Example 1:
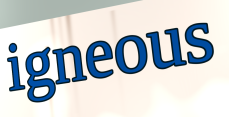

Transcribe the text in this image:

igneous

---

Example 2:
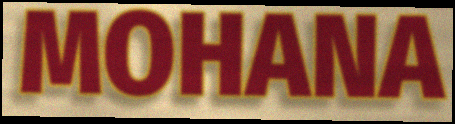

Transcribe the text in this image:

MOHANA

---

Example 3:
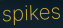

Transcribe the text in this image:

spikes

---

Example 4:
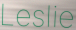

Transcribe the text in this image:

Leslie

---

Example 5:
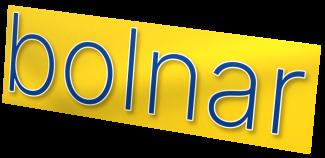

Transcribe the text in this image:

bolnar